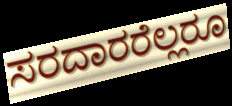
ಸರದಾರರೆಲ್ಲರೂ